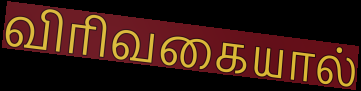
விரிவகையால்